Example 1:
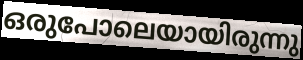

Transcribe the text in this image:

ഒരുപോലെയായിരുന്നു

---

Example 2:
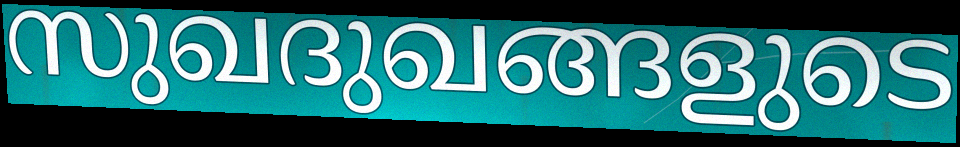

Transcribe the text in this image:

സുഖദുഖങ്ങളുടെ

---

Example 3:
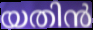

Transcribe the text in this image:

യതിൻ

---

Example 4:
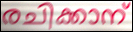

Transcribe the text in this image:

രചിക്കാന്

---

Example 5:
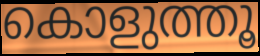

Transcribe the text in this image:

കൊളുത്തൂ